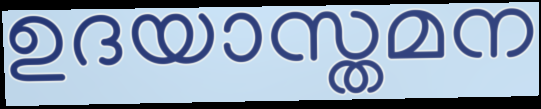
ഉദയാസ്തമന